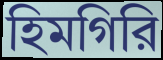
হিমগিরি